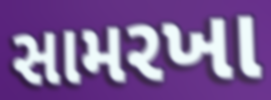
સામરખા